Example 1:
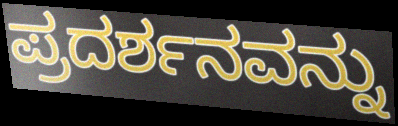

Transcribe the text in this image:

ಪ್ರದರ್ಶನವನ್ನು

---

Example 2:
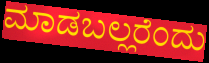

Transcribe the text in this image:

ಮಾಡಬಲ್ಲರೆಂದು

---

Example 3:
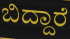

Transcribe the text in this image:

ಬಿದ್ದಾರೆ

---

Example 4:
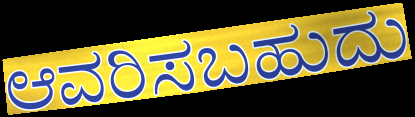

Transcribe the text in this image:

ಆವರಿಸಬಹುದು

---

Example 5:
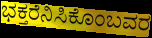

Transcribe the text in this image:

ಭಕ್ತರೆನಿಸಿಕೊಂಬವರ